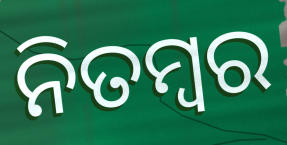
ନିତମ୍ୱର